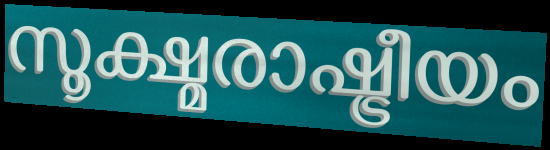
സൂക്ഷ്മരാഷ്ട്രീയം